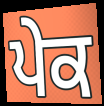
ਪੇਕ